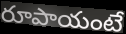
రూపాయంటే